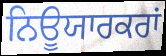
ਨਿਊਯਾਰਕਰਾਂ